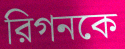
রিগনকে